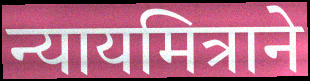
न्यायमित्राने